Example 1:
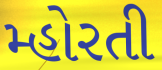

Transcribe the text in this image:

મ્હોરતી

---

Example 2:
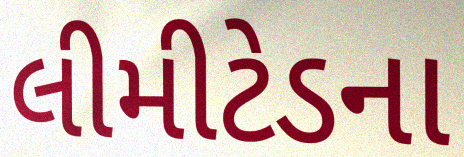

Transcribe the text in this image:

લીમીટેડના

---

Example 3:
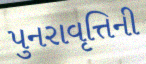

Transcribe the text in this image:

પુનરાવૃત્તિની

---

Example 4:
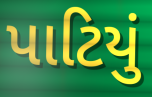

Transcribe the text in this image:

પાટિયું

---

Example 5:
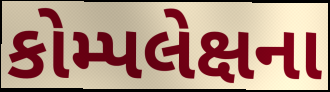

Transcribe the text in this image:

કોમ્પલેક્ષના